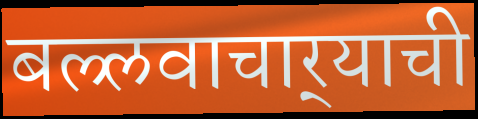
बल्लवाचार्याची